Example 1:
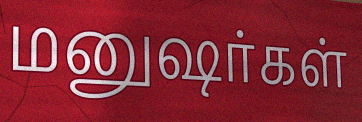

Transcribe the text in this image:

மனுஷர்கள்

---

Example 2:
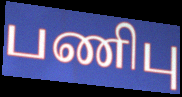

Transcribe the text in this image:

பணிபு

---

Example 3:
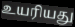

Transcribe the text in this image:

உயரியது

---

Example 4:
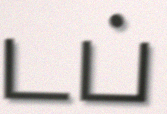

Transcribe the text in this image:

டப்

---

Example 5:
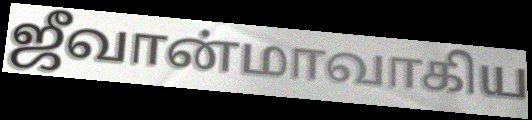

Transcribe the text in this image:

ஜீவான்மாவாகிய